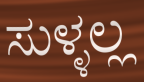
ಸುಳ್ಳಲ್ಲ